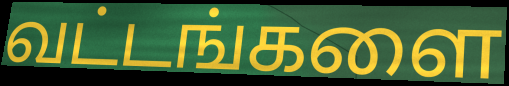
வட்டங்களை